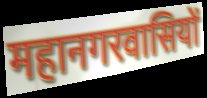
महानगरवासियों